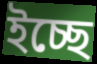
ইচ্ছে